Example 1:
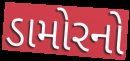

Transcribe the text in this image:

ડામોરનો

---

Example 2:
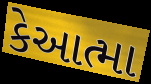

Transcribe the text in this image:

કેઆત્મા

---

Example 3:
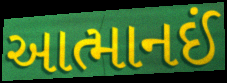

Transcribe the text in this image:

આત્માનઈં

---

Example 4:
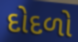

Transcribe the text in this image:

દોદળો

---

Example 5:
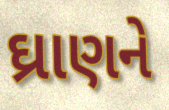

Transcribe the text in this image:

ઘ્રાણને